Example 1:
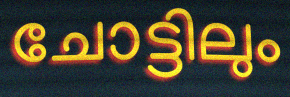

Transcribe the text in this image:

ചോട്ടിലും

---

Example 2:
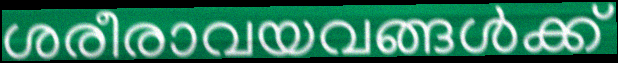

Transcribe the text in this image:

ശരീരാവയവങ്ങൾക്ക്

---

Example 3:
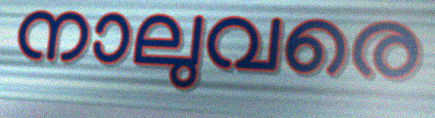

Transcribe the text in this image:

നാലുവരെ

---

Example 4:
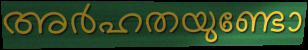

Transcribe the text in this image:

അർഹതയുണ്ടോ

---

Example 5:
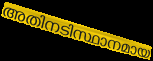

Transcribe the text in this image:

അതിനടിസ്ഥാനമായ